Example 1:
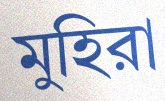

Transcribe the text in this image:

মুহিরা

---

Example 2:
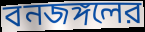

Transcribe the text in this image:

বনজঙ্গলের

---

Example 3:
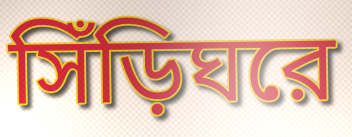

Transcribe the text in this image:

সিঁড়িঘরে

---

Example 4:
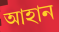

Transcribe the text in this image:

আহান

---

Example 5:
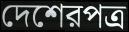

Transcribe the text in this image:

দেশেরপত্র